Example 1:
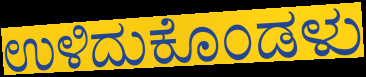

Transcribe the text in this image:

ಉಳಿದುಕೊಂಡಳು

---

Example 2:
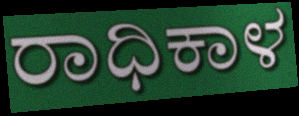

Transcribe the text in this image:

ರಾಧಿಕಾಳ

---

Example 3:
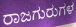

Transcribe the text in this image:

ರಾಜಗುರುಗಳ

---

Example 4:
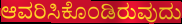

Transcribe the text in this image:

ಆವರಿಸಿಕೊಂಡಿರುವುದು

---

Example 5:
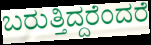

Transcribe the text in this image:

ಬರುತ್ತಿದ್ದರೆಂದರೆ